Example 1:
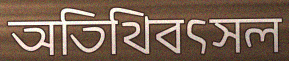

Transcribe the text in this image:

অতিথিবৎসল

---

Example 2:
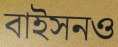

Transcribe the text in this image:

বাইসনও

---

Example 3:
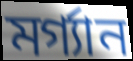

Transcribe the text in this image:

মর্গ্যান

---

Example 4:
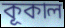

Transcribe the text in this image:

কূকাল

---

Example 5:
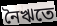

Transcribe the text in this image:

নৈঋতে